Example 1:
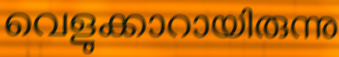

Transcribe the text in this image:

വെളുക്കാറായിരുന്നു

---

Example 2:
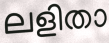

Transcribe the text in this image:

ലളിതാ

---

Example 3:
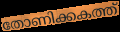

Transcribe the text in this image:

തോണിക്കകത്ത്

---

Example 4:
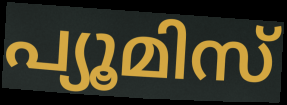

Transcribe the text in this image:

പ്യൂമിസ്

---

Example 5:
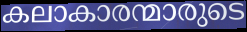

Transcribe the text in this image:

കലാകാരന്മാരുടെ